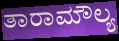
ತಾರಾಮೌಲ್ಯ